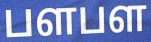
பளபள